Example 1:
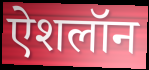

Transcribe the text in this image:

ऐशलॉन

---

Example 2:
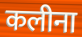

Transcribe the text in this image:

कलीना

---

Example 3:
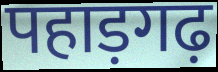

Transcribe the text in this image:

पहाड़गढ़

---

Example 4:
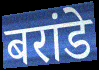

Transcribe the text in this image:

बरांडे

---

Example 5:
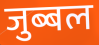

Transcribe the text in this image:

जुब्बल